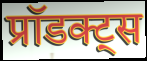
प्रॉडक्ट्स